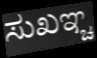
ಸುಖಞ್ಚ